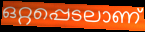
ഒറ്റപ്പെടലാണ്